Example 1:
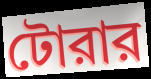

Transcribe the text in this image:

টোরার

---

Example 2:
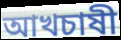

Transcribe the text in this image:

আখচাষী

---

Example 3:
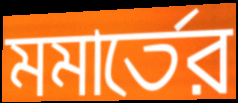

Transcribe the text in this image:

মমার্তের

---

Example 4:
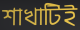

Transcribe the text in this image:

শাখাটিই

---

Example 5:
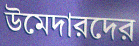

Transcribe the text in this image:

উমেদারদের